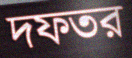
দফতর